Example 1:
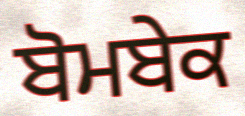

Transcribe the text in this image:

ਬੋਮਬੇਕ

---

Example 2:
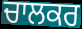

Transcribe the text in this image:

ਚਾਲਕਰ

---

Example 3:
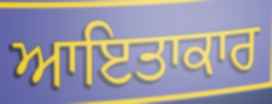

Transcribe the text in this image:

ਆਇਤਾਕਾਰ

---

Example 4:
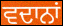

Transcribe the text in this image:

ਵਦਾਨਾਂ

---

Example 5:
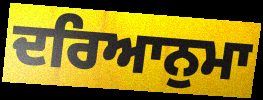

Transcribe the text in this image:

ਦਰਿਆਨੁਮਾ